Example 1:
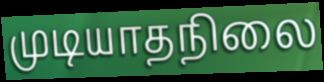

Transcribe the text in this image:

முடியாதநிலை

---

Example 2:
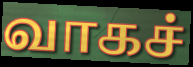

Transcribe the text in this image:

வாகச்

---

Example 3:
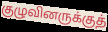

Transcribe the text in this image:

குழுவினருக்குத்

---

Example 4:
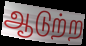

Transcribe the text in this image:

ஆடுற்ற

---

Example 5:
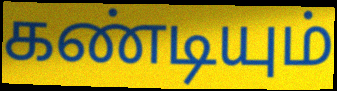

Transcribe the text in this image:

கண்டியும்